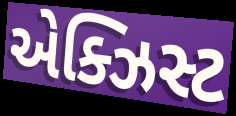
એક્ઝિસ્ટ